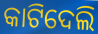
କାଟିଦେଲି